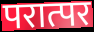
परात्‍पर